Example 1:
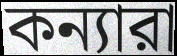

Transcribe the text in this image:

কন্যারা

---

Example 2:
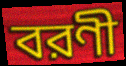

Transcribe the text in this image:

বরণী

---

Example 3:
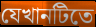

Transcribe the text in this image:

যেখানটিতে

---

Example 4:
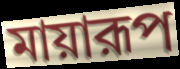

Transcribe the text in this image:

মায়ারূপ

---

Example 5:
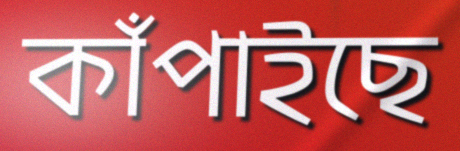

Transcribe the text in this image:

কাঁপাইছে